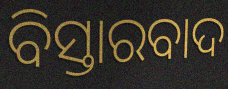
ବିସ୍ତାରବାଦ